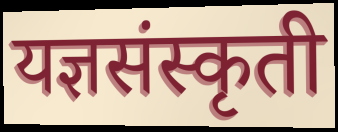
यज्ञसंस्कृती